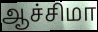
ஆச்சிமா